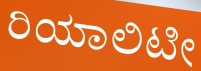
ರಿಯಾಲಿಟೀ